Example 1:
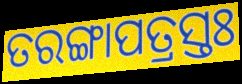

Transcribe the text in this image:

ତରଙ୍ଗାପତ୍ରସ୍ତଃ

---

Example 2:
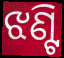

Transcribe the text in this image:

ଝଣ୍ଟି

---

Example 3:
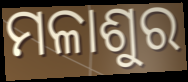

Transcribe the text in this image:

ମଳାଶୁର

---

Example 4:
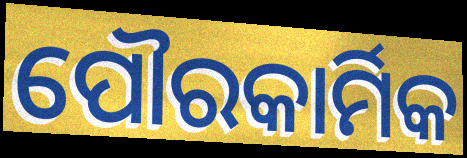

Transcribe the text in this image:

ପୌରକାର୍ମିକ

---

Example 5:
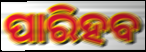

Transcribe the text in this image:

ପାରିହବ